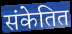
संकेतित